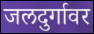
जलदुर्गावर